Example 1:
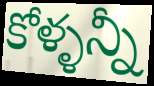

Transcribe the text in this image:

కోళ్ళన్నీ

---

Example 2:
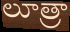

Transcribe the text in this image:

లూత్రా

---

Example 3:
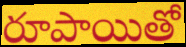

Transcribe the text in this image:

రూపాయితో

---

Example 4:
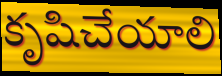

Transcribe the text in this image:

కృషిచేయాలి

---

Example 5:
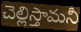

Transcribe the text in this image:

చెల్లిస్తామనీ